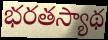
భరతస్యాథ